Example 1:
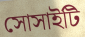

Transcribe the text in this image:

সোসাইটি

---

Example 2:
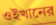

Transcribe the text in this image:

ওইখানের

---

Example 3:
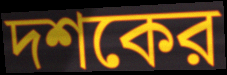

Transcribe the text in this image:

দশকের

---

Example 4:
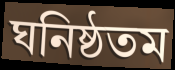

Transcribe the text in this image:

ঘনিষ্ঠতম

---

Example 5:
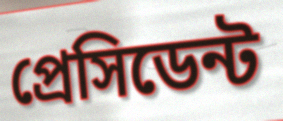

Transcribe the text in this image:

প্রেসিডেন্ট